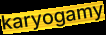
karyogamy